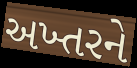
અખ્તરને